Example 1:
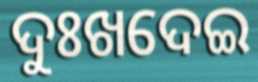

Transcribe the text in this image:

ଦୁଃଖଦେଇ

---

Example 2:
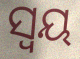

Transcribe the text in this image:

ସ୍ବୟ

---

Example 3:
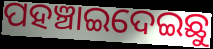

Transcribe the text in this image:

ପହଞ୍ଚାଇଦେଇଛୁ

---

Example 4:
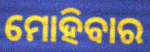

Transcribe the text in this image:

ମୋହିବାର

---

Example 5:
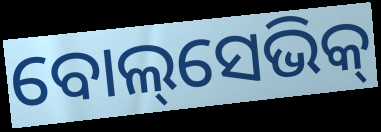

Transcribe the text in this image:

ବୋଲ୍‌ସେଭିକ୍